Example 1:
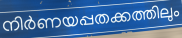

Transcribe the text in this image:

നിർണയപ്പതക്കത്തിലും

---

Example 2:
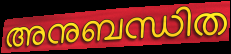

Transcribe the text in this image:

അനുബന്ധിത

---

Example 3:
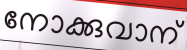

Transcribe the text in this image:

നോക്കുവാന്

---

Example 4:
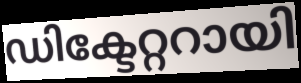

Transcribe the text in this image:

ഡിക്ടേറ്ററായി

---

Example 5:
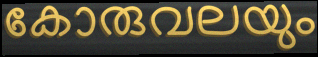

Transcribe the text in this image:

കോരുവലയും